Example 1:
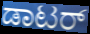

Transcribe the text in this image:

ಡಾಟರ್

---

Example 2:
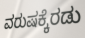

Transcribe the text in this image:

ವರುಷಕ್ಕೆರಡು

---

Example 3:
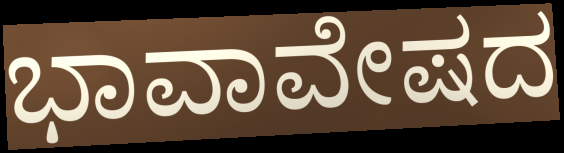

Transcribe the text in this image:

ಭಾವಾವೇಷದ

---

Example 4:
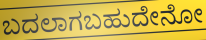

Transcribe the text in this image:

ಬದಲಾಗಬಹುದೇನೋ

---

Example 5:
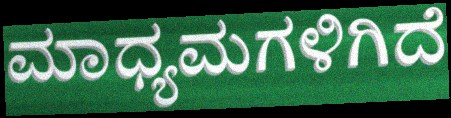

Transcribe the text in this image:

ಮಾಧ್ಯಮಗಳಿಗಿದೆ